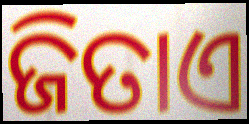
ଜିତାଏ